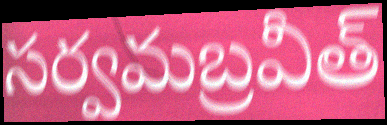
సర్వమబ్రవీత్